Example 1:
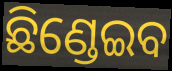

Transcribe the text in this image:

ଛିଣ୍ଡେଇବ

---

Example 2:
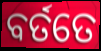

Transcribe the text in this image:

ବର୍ତତେ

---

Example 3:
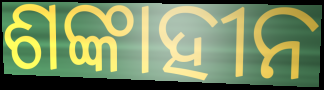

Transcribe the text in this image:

ଶଙ୍କାହୀନ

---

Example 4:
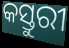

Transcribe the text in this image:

କସ୍ତୁରୀ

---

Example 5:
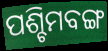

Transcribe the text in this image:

ପଶ୍ଚିମବଙ୍ଗ